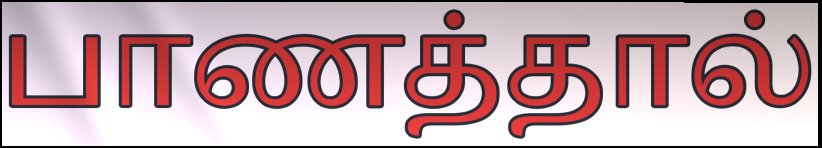
பாணத்தால்